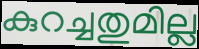
കുറച്ചതുമില്ല